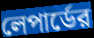
লেপার্ডের